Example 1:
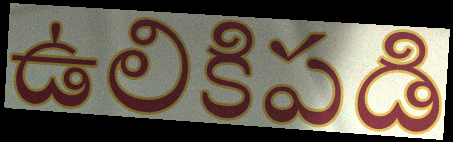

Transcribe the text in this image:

ఉలికిపడి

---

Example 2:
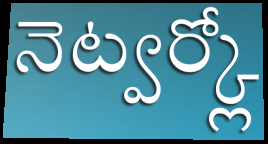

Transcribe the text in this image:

నెట్వర్క్లో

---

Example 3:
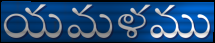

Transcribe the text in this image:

యమళము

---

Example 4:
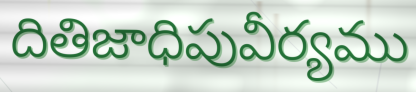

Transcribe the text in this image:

దితిజాధిపువీర్యము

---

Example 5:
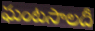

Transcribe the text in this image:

ఘంటసాలదీ